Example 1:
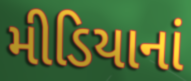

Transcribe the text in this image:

મીડિયાનાં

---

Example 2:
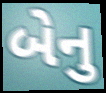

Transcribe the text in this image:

બેનુ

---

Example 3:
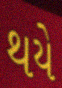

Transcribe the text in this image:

થયે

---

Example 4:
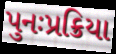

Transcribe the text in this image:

પુનઃપ્રક્રિયા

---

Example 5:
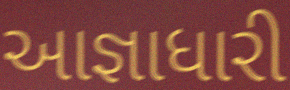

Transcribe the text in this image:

આજ્ઞાધારી